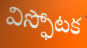
విస్ఫోటక